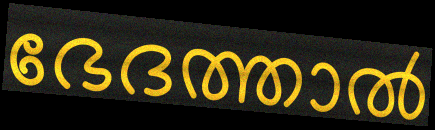
ഭേദത്താൽ